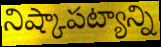
నిష్కాపట్యాన్ని